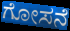
ಗೋಸನೆ